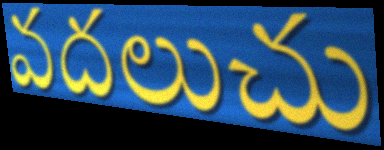
వదలుచు